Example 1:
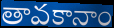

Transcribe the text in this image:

తావకానాం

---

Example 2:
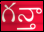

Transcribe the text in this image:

గన్తా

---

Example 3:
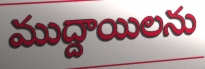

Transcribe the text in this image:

ముద్దాయిలను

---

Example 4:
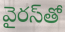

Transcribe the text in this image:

వైరస్‌తో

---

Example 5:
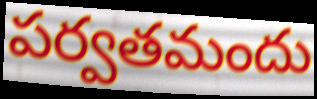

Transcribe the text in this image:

పర్వతమందు